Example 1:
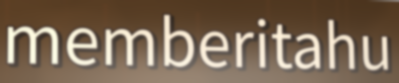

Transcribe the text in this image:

memberitahu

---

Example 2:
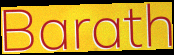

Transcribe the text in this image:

Barath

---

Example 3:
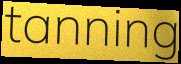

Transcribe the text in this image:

tanning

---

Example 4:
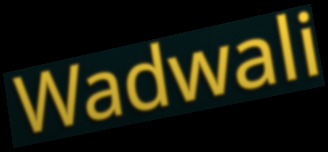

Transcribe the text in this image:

Wadwali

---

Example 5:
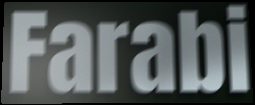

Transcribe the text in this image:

Farabi